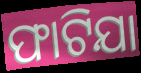
ଫାଟିଯା